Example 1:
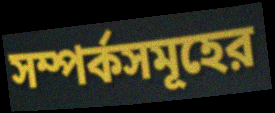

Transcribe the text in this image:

সম্পর্কসমূহের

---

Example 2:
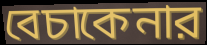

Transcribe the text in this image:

বেচাকেনার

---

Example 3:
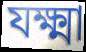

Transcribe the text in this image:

যক্ষ্মা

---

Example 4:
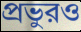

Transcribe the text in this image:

প্রভুরও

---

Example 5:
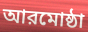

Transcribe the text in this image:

আরমোষ্ঠা